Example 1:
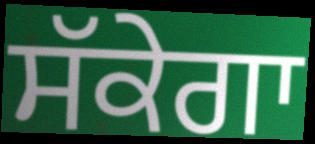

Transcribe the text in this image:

ਸੱਕੇਗਾ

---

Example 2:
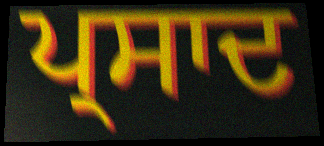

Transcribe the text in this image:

ਪ੍ਸਾਦ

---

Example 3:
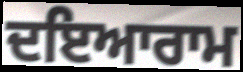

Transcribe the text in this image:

ਦਇਆਰਾਮ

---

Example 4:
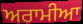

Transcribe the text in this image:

ਅਰਾਮੀਆ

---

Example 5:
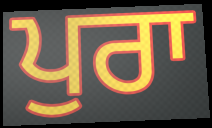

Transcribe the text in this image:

ਪੁਰਾ